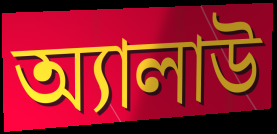
অ্যালাউ